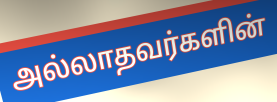
அல்லாதவர்களின்